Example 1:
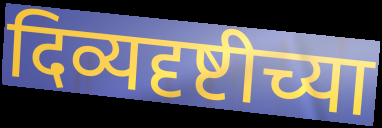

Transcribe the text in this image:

दिव्यदृष्टीच्या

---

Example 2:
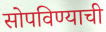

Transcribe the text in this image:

सोपविण्याची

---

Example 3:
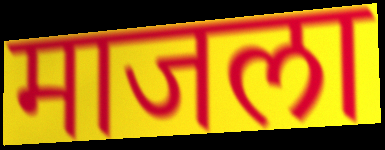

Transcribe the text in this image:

माजला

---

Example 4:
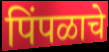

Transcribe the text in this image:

पिंपळाचे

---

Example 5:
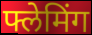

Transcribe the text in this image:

फ्लेमिंग